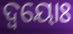
ଦ୍ବୟୋଃ